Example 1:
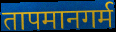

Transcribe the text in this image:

तापमानगर्म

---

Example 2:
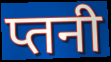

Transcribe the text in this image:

प्तनी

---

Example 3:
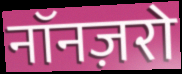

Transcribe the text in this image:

नॉनज़रो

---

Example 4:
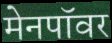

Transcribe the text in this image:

मेनपॉवर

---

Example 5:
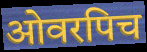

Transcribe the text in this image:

ओवरपिच